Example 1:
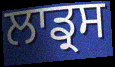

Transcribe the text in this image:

ਲਾਡ੍ਰਸ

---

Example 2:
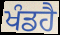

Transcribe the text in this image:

ਖੰਡਹੈ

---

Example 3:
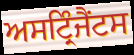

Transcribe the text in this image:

ਅਸਟ੍ਰਿੰਜੈਂਟਸ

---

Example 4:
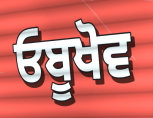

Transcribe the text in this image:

ਓਬੂਖੋਵ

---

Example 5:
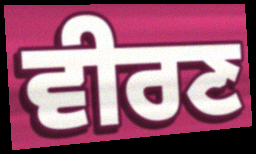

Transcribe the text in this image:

ਵੀਰਣ